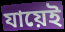
যায়েই